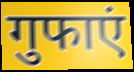
गुफाएं